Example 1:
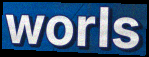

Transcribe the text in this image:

worls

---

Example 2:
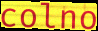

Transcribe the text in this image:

colno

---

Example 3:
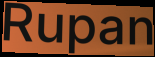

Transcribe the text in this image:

Rupan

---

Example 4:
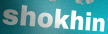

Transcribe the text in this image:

shokhin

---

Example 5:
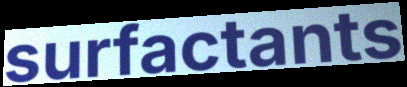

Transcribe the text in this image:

surfactants